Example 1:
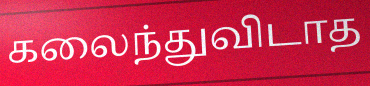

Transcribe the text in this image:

கலைந்துவிடாத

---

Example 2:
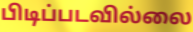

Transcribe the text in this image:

பிடிப்படவில்லை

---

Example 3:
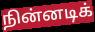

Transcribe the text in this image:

நின்னடிக்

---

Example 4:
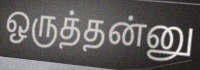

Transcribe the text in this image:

ஒருத்தன்னு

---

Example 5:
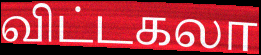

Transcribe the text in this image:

விட்டகலா